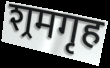
श्रमगृह